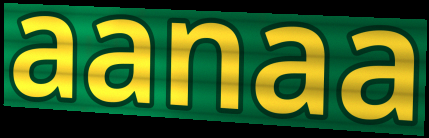
aanaa